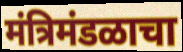
मंत्रिमंडळाचा